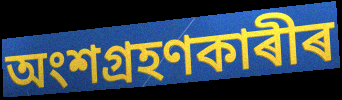
অংশগ্ৰহণকাৰীৰ